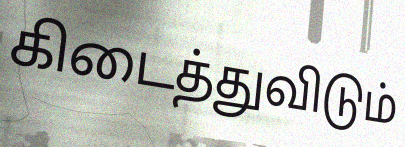
கிடைத்துவிடும்